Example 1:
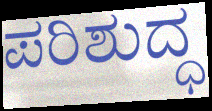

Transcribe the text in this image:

ಪರಿಶುದ್ಧ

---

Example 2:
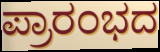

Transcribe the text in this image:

ಪ್ರಾರಂಭದ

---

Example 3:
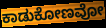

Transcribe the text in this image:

ಕಾಡುಕೋಣವೋ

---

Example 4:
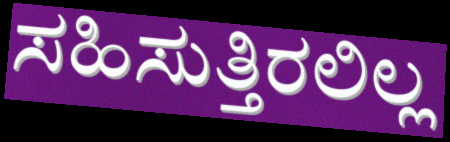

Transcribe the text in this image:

ಸಹಿಸುತ್ತಿರಲಿಲ್ಲ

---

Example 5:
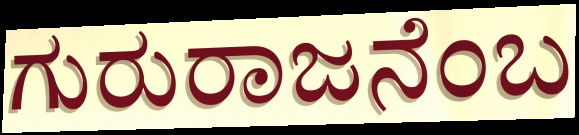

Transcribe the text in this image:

ಗುರುರಾಜನೆಂಬ